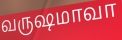
வருஷமாவா